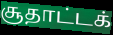
சூதாட்டக்